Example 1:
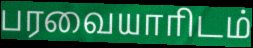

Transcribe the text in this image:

பரவையாரிடம்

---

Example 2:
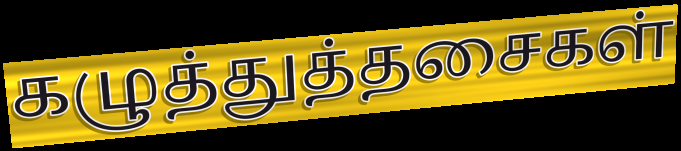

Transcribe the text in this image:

கழுத்துத்தசைகள்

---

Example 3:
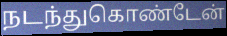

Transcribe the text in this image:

நடந்துகொண்டேன்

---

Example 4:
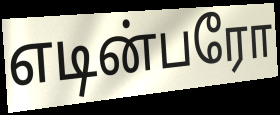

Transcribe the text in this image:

எடின்பரோ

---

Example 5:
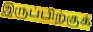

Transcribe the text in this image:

இருப்பிற்குக்